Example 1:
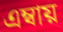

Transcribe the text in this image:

এম্বায়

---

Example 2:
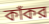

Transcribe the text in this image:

কাঁকর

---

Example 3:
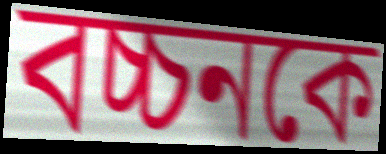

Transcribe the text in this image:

বচ্চনকে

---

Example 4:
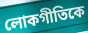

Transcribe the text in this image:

লোকগীতিকে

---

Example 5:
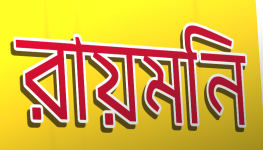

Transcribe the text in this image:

রায়মনি